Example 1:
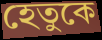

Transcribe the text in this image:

হেতুকে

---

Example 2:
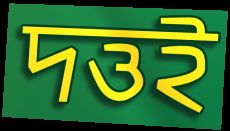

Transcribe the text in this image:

দত্তই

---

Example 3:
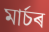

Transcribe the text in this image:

মাৰ্চৰ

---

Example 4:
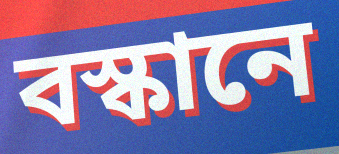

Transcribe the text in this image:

বস্কানে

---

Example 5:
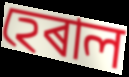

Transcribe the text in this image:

হেৰাল